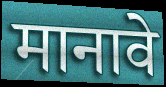
मानावे